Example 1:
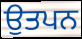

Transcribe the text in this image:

ਉਤਪਨ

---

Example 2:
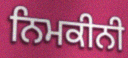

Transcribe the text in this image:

ਨਿਮਕੀਨੀ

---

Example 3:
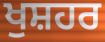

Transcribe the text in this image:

ਖੁਸ਼ਹਰ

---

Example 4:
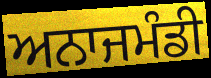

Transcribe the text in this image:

ਅਨਾਜਮੰਡੀ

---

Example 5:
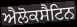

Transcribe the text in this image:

ਐਲੋਕਸੈਟਿਨ